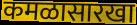
कमळासारखा